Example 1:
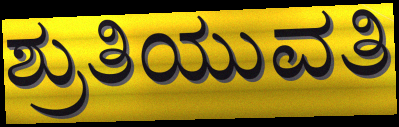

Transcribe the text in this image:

ಶ್ರುತಿಯುವತಿ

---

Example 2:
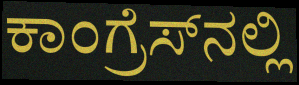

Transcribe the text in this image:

ಕಾಂಗ್ರೆಸ್‍ನಲ್ಲಿ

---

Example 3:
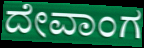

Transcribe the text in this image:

ದೇವಾಂಗ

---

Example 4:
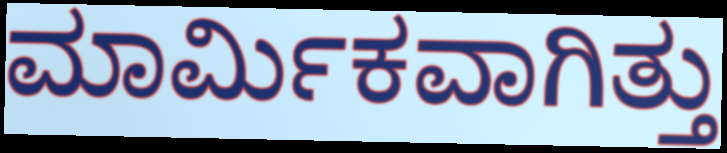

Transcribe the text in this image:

ಮಾರ್ಮಿಕವಾಗಿತ್ತು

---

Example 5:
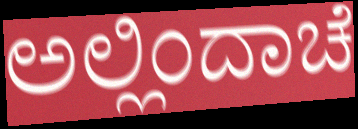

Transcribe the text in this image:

ಅಲ್ಲಿಂದಾಚೆ